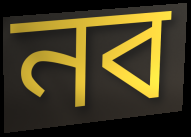
নব